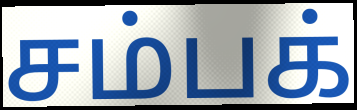
சம்பக்